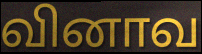
வினாவ